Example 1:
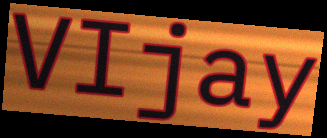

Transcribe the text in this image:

VIjay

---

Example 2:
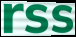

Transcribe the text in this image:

rss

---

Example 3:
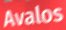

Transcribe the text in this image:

Avalos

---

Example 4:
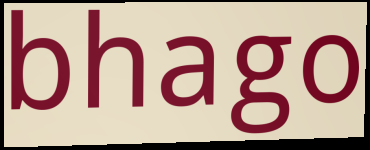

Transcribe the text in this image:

bhago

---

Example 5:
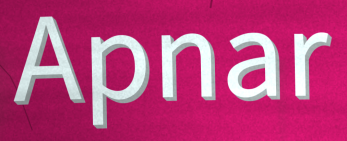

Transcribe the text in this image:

Apnar